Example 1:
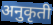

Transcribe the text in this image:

अनुकृती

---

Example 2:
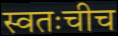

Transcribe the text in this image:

स्वतःचीच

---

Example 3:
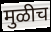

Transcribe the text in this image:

मुळीच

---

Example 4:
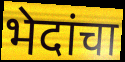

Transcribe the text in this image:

भेदांचा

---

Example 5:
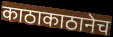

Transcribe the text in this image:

काठाकाठानेच